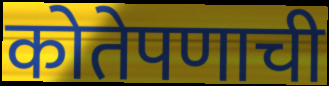
कोतेपणाची